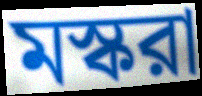
মস্করা